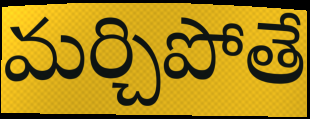
మర్చిపోతే